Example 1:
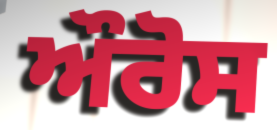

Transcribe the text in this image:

ਔਰੋਸ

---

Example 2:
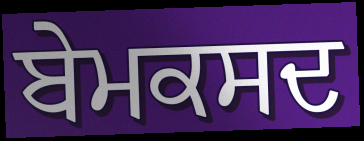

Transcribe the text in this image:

ਬੇਮਕਸਦ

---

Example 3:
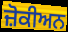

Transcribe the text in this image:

ਜ਼ੋਕੀਅਨ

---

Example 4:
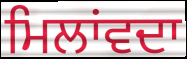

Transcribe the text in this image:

ਮਿਲਾਂਵਦਾ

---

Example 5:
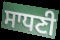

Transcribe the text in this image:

ਸਾਧਣੀ